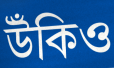
উঁকিও